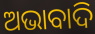
ଅଭାବାଦି